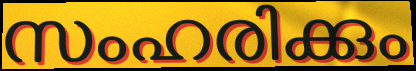
സംഹരിക്കും